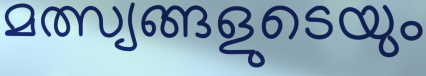
മത്സ്യങ്ങളുടെയും